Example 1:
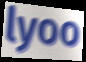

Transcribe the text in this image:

lyoo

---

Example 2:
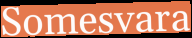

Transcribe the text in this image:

Somesvara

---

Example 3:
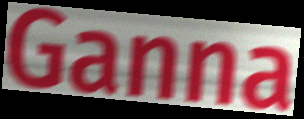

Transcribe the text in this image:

Ganna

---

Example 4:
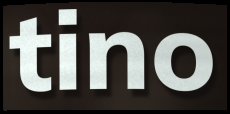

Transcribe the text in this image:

tino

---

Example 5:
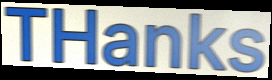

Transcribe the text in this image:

THanks